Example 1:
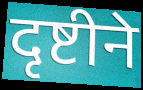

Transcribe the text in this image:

दृष्टीने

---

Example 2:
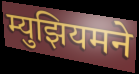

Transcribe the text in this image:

म्युझियमने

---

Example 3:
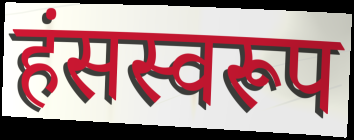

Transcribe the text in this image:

हंसस्वरूप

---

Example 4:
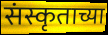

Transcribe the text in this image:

संस्कृताच्या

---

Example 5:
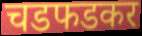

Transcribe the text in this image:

चडफडकर